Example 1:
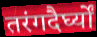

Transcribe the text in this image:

तरंगदैर्घ्यों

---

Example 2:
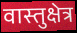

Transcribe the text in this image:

वास्तुक्षेत्र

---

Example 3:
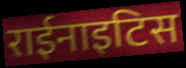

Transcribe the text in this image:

राईनाइटिस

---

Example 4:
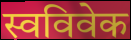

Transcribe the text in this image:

स्वविवेक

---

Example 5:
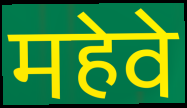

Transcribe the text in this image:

महेवे